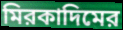
মিরকাদিমের